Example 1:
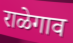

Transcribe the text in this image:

राळेगाव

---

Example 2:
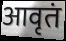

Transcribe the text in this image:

आवृतं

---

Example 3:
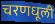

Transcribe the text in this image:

चरणधूली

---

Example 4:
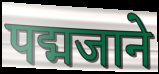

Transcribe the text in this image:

पद्मजाने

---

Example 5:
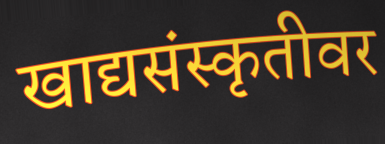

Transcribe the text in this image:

खाद्यसंस्कृतीवर